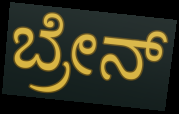
ಬ್ರೇನ್